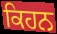
ਕਿਹਨ